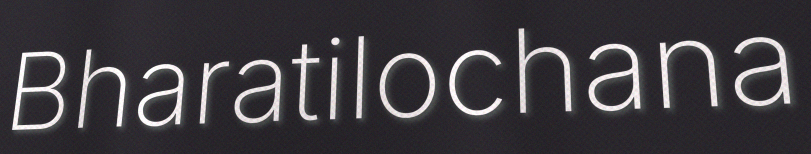
Bharatilochana